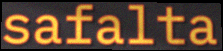
safalta